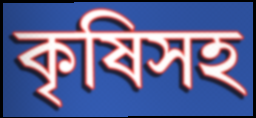
কৃষিসহ